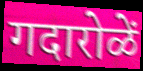
गदारोळें